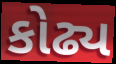
કોઢ્ય